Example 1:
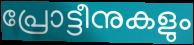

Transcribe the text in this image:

പ്രോട്ടീനുകളും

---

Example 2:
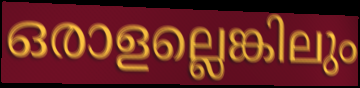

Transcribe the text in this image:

ഒരാളല്ലെങ്കിലും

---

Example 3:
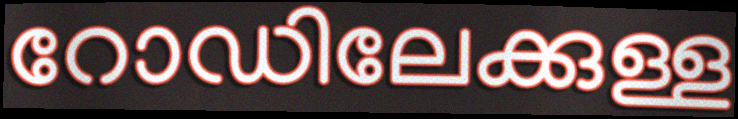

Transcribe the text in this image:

റോഡിലേക്കുള്ള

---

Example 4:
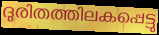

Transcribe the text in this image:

ദുരിതത്തിലകപ്പെട്ടു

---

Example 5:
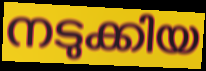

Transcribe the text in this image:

നടുക്കിയ